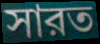
সারত